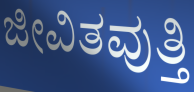
ಜೀವಿತವುತ್ತಿ